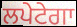
ਲਪੇਟੇਗਾ